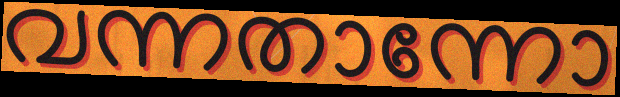
വന്നതാന്നോ